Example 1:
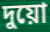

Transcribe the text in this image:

দুয়ো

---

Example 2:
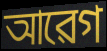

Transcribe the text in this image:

আৱেগ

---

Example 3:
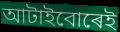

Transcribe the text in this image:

আটাইবোৰেই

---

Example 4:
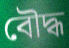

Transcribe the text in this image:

বৌদ্ধ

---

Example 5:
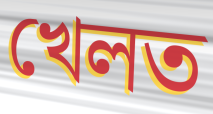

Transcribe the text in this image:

খেলত